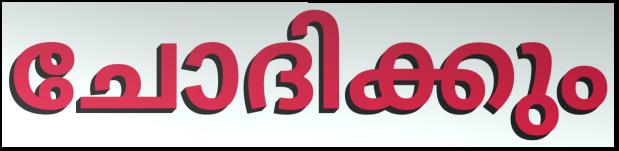
ചോദിക്കും